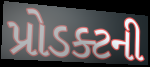
પ્રોડક્ટની